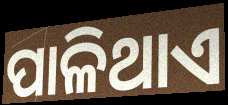
ପାଳିଥାଏ